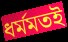
ধর্মমতই